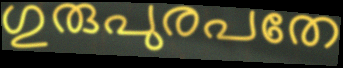
ഗുരുപുരപതേ